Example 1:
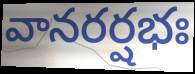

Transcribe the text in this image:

వానరర్షభః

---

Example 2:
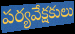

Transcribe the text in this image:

పర్యవేక్షకులు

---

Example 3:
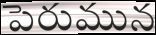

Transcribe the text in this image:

పెరుమున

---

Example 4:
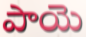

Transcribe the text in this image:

పాయె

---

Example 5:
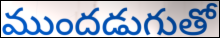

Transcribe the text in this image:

ముందడుగుతో